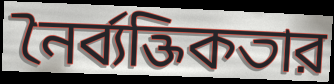
নৈর্ব্যক্তিকতার